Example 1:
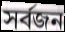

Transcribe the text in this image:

সর্বজন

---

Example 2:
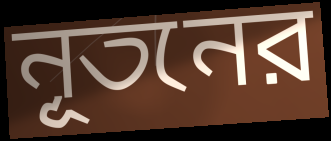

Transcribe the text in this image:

নূতনের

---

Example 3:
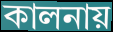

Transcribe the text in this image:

কালনায়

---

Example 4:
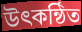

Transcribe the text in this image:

উৎকন্ঠিত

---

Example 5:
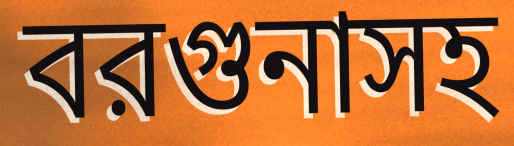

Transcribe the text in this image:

বরগুনাসহ